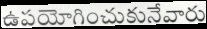
ఉపయోగించుకునేవారు